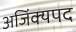
अजिंक्यपद